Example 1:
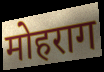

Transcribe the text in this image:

मोहराग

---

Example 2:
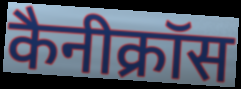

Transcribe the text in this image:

कैनीक्रॉस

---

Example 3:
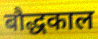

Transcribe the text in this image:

बौद्धकाल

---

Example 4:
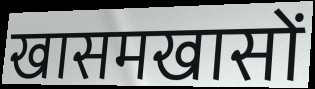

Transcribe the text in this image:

खासमखासों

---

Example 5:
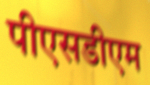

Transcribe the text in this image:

पीएसडीएम